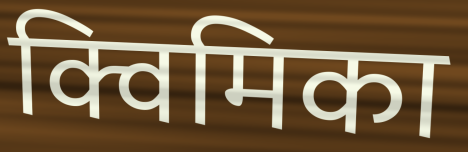
क्विमिका